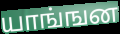
யாங்ஙன